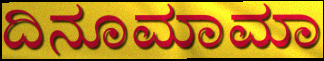
ದಿನೂಮಾಮಾ